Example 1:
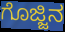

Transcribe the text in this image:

ಗೊಜ್ಜಿನ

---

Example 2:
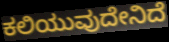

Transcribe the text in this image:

ಕಲಿಯುವುದೇನಿದೆ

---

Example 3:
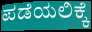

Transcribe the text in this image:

ಪಡೆಯಲಿಕ್ಕೆ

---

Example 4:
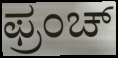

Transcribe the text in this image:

ಫ್ರಂಚ್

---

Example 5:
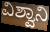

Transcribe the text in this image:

ವಿಶ್ವಾನಿ